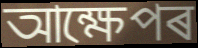
আক্ষেপৰ